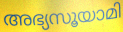
അഭ്യസൂയാമി